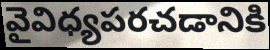
వైవిధ్యపరచడానికి